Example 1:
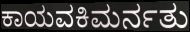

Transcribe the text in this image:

ಕಾಯವಕಿಮರ್ನತು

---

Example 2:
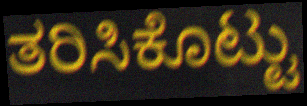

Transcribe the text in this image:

ತರಿಸಿಕೊಟ್ಟು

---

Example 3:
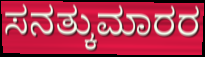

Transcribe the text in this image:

ಸನತ್ಕುಮಾರರ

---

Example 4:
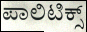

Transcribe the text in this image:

ಪಾಲಿಟಿಕ್ಸ್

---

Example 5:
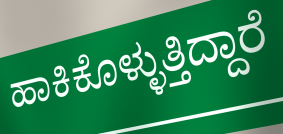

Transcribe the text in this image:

ಹಾಕಿಕೊಳ್ಳುತ್ತಿದ್ದಾರೆ